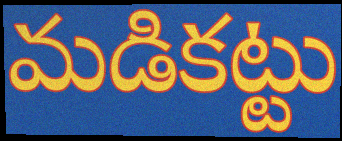
మడికట్టు